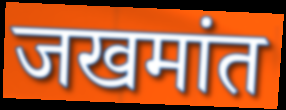
जखमांत